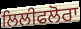
ਲਿਲੀਫਲੋਰਾ